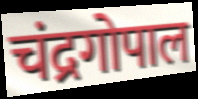
चंद्रगोपाल